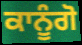
ਕਾਨੂੰਗੋ